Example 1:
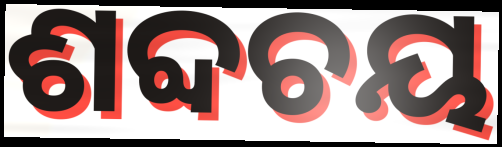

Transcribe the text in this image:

ଶବ୍ଦଚୟ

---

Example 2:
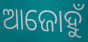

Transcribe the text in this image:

ଆଜୋହୁଁ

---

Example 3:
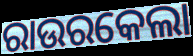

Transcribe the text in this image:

ରାଉରକେଲା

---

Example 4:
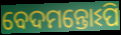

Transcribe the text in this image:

ବେଦମନ୍ତୋଽପି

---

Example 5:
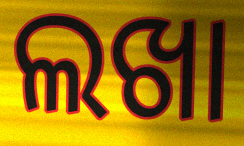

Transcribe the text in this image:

ଲଖା